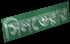
সিলভেরার